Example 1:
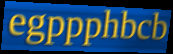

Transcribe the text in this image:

egppphbcb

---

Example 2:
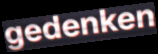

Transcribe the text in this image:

gedenken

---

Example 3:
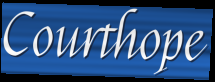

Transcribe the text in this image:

Courthope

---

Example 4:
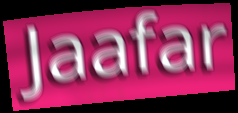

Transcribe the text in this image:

Jaafar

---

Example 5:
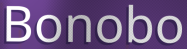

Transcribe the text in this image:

Bonobo